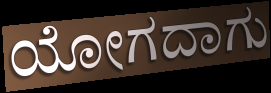
ಯೋಗದಾಗು